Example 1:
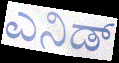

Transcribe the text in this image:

ಎನಿಡ್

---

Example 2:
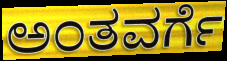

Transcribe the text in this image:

ಅಂತವರ್ಗೆ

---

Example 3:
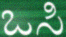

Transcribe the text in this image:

ಒಸಿ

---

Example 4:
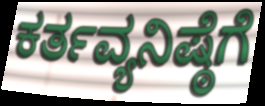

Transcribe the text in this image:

ಕರ್ತವ್ಯನಿಷ್ಠೆಗೆ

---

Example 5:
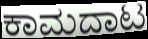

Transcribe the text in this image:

ಕಾಮದಾಟ